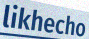
likhecho